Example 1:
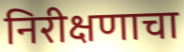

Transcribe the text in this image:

निरीक्षणाचा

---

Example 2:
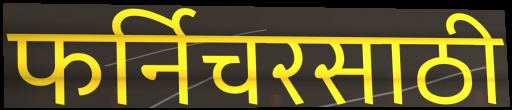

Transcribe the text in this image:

फर्निचरसाठी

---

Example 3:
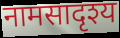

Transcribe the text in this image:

नामसादृश्य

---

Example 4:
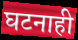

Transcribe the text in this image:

घटनाही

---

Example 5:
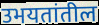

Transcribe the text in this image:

उभयतांतील